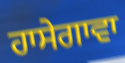
ਹਾਸੇਗਾਵਾ